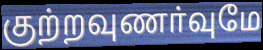
குற்றவுணர்வுமே